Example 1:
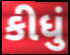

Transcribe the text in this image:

કીધું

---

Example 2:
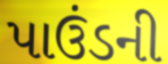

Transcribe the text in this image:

પાઉંડની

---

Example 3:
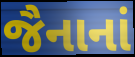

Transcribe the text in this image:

જૈનાનાં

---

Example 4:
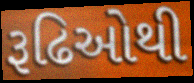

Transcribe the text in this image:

રૂઢિઓથી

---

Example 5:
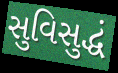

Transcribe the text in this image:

સુવિસુદ્ધં